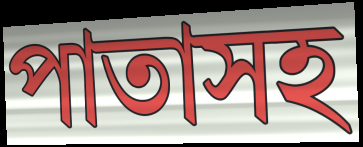
পাতাসহ